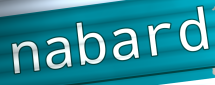
nabard